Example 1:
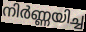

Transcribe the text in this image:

നിർണ്ണയിച്ച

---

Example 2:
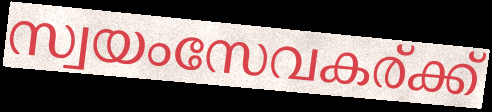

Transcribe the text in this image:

സ്വയംസേവകര്ക്ക്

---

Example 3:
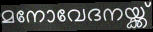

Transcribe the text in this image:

മനോവേദനയ്ക്ക്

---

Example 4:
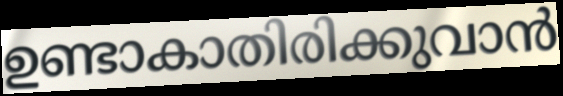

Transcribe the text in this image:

ഉണ്ടാകാതിരിക്കുവാൻ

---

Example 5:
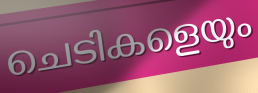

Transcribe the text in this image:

ചെടികളെയും